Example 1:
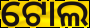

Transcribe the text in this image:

ଟୋଲ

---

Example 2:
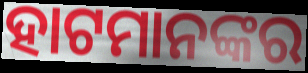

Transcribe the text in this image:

ହାଟମାନଙ୍କର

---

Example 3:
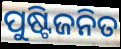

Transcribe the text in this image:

ପୁଷ୍ଟିଜନିତ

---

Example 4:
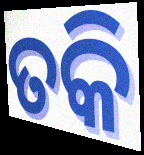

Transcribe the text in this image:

ତକି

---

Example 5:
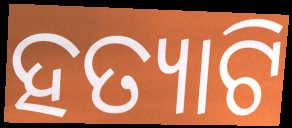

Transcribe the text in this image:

ହତ୍ୟାଟି